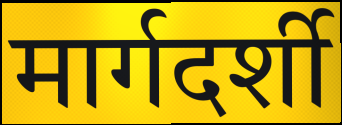
मार्गदर्शी